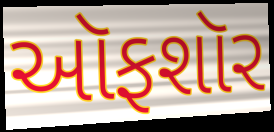
ઑફશૉર